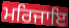
ਮਰਿਜਾਇ